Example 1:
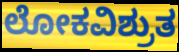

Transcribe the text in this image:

ಲೋಕವಿಶ್ರುತ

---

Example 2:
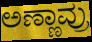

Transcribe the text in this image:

ಅಣ್ಣಾವ್ರು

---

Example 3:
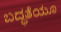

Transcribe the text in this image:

ಬದ್ಧತೆಯೂ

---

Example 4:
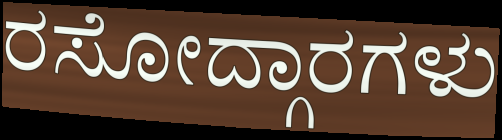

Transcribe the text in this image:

ರಸೋದ್ಗಾರಗಳು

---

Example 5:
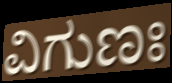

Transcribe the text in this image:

ವಿಗುಣಃ